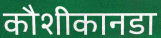
कौशीकानडा